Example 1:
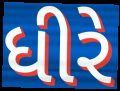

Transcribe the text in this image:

ધીરે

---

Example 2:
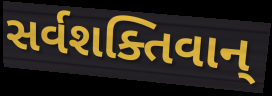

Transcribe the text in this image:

સર્વશક્તિવાન્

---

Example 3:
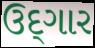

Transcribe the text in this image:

ઉદ્‌ગાર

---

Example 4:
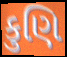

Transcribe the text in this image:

કુણિ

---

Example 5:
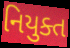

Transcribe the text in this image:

નિયુક્ત